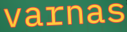
varnas